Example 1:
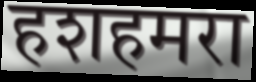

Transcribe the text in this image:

हशहमरा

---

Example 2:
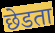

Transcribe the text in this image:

छेडता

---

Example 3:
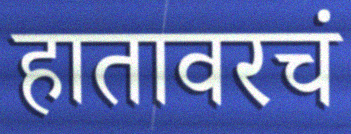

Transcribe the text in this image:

हातावरचं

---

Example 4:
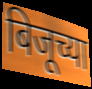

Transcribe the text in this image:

बिजूच्या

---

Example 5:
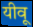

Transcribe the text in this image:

यीवू